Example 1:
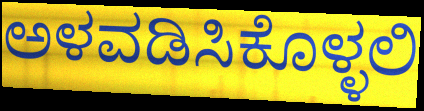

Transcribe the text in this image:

ಅಳವಡಿಸಿಕೊಳ್ಳಲಿ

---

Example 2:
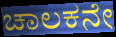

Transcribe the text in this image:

ಚಾಲಕನೇ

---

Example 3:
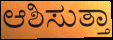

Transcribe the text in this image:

ಆಶಿಸುತ್ತಾ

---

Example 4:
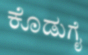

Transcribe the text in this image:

ಕೊಡುಗೈ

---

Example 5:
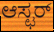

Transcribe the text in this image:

ಆಸ್ಟರ್